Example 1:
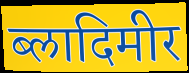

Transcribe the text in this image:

ब्लादिमीर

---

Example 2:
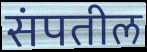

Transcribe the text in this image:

संपतील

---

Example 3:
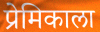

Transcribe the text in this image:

प्रेमिकाला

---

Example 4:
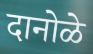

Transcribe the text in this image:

दानोळे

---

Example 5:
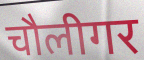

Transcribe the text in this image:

चौलीगर